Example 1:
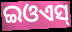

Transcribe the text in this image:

ଇଓଏସ୍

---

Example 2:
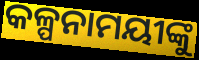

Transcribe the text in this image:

କଳ୍ପନାମୟୀଙ୍କୁ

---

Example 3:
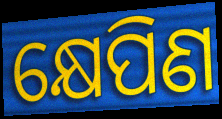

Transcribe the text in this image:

କ୍ଷେପିଣ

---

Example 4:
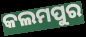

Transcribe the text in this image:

କଲମପୁର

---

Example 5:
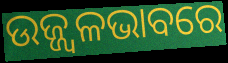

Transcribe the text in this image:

ଉଜ୍ଜ୍ୱଳଭାବରେ